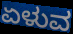
ಏಳುವ